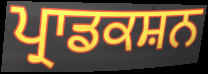
ਪ੍ਰਾਡਕਸ਼ਨ